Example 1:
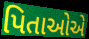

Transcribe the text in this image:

પિતાઓએ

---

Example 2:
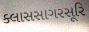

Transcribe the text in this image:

ક્લાસસાગરસૂરિ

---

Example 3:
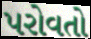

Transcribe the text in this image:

પરોવતો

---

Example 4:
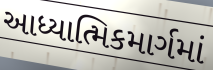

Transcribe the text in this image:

આધ્યાત્મિકમાર્ગમાં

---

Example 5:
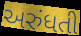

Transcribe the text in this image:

અરુંધતી